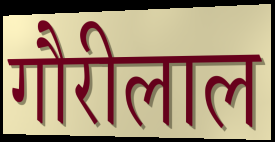
गौरीलाल